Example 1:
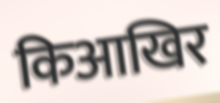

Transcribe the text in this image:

किआखिर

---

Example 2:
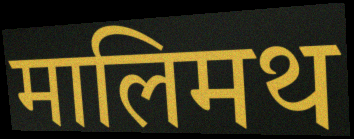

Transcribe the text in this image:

मालिमथ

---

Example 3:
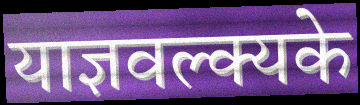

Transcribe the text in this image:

याज्ञवल्क्यके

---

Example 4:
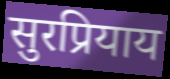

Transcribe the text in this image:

सुरप्रियाय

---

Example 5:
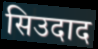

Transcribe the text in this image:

सिउदाद